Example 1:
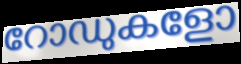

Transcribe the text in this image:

റോഡുകളോ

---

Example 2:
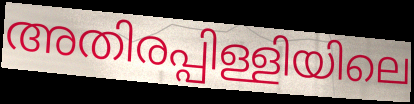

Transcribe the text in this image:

അതിരപ്പിള്ളിയിലെ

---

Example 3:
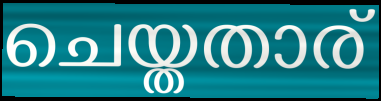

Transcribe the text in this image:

ചെയ്തതാര്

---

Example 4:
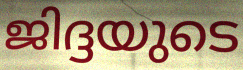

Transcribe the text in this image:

ജിദ്ദയുടെ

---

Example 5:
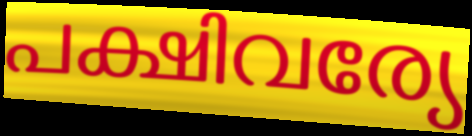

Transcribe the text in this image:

പക്ഷിവര്യേ